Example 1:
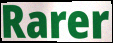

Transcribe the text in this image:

Rarer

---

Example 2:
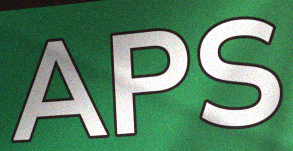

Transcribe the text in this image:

APS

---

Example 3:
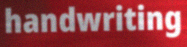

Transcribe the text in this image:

handwriting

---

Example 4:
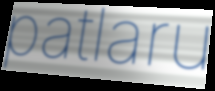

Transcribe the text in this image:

patlaru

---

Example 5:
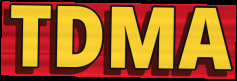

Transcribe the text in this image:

TDMA